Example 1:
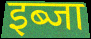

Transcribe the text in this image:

इब्जा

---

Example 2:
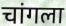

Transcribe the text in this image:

चांगला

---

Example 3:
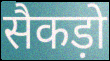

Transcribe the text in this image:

सैकड़ो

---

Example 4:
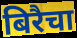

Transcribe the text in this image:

बिरैचा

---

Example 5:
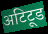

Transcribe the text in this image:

अटिटूड